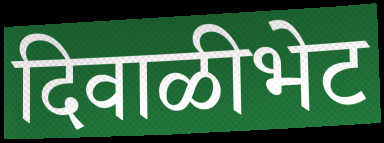
दिवाळीभेट